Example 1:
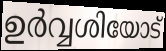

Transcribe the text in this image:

ഉർവ്വശിയോട്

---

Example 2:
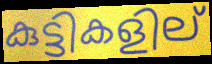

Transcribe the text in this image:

കുട്ടികളില്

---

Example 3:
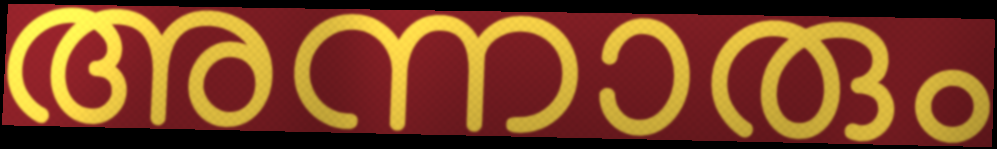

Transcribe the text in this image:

അന്നാരും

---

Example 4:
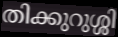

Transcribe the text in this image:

തിക്കുറുശ്ശി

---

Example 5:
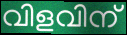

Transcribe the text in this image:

വിളവിന്